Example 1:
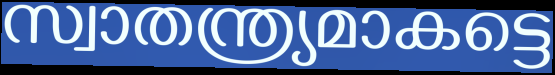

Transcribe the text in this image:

സ്വാതന്ത്ര്യമാകട്ടെ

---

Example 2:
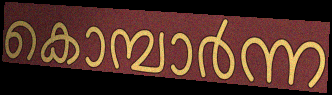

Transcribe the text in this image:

കൊമ്പാർന്ന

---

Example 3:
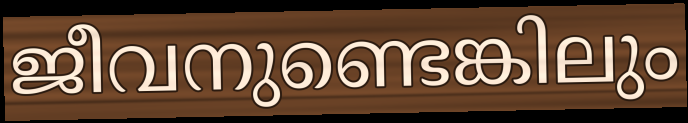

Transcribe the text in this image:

ജീവനുണ്ടെങ്കിലും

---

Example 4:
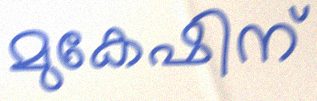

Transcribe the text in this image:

മുകേഷിന്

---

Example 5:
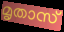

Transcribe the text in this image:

മൃതാസ്